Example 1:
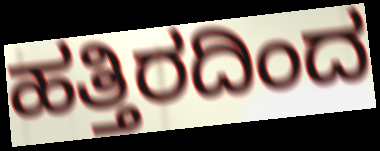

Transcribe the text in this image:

ಹತ್ತಿರದಿಂದ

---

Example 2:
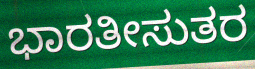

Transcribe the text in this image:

ಭಾರತೀಸುತರ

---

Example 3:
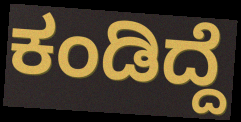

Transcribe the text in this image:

ಕಂಡಿದ್ದೆ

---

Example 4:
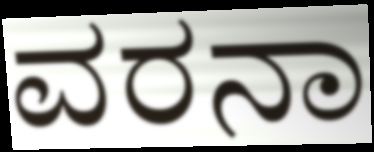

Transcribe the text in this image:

ವರನಾ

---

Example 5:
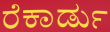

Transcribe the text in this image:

ರೆಕಾರ್ಡು